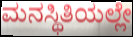
ಮನಸ್ಥಿತಿಯಲ್ಲೇ